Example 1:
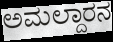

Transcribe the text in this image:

ಅಮಲ್ದಾರನ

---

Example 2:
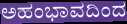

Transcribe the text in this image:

ಅಹಂಭಾವದಿಂದ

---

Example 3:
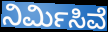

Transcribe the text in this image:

ನಿರ್ಮಿಸಿವೆ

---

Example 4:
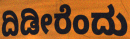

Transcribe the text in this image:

ದಿಡೀರೆಂದು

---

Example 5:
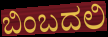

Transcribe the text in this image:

ಬಿಂಬದಲಿ